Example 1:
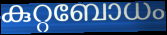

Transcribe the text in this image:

കുറ്റബോധം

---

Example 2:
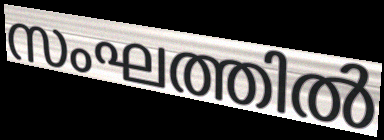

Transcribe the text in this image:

സംഘത്തിൽ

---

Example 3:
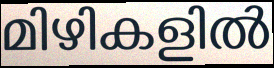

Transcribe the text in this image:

മിഴികളിൽ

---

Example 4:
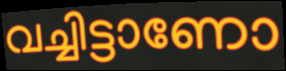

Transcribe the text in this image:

വച്ചിട്ടാണോ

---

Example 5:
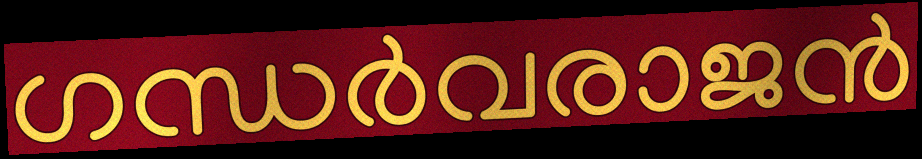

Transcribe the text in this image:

ഗന്ധർവരാജൻ